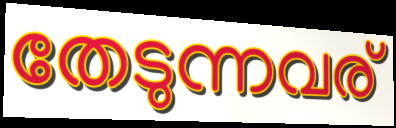
തേടുന്നവര്